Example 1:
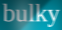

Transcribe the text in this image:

bulky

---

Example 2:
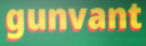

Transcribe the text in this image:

gunvant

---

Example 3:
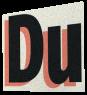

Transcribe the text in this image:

Du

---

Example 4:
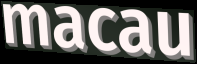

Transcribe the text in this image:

macau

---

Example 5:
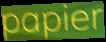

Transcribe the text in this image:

papier